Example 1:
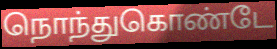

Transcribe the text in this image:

நொந்துகொண்டே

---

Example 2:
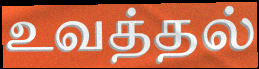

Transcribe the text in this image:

உவத்தல்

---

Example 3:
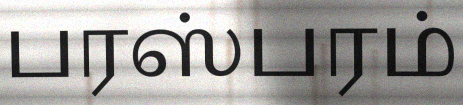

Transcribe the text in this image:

பரஸ்பரம்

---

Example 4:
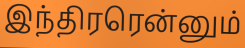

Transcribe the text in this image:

இந்திரரென்னும்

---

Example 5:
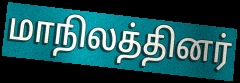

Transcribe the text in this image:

மாநிலத்தினர்